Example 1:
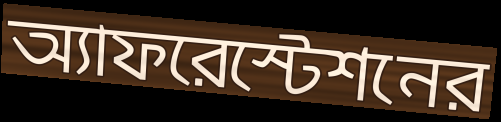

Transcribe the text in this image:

অ্যাফরেস্টেশনের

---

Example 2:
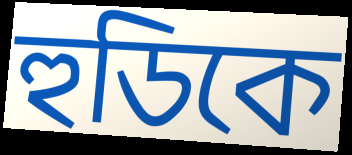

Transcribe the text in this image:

হুডিকে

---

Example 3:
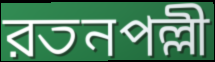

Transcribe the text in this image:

রতনপল্লী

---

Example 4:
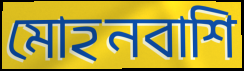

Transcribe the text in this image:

মোহনবাশি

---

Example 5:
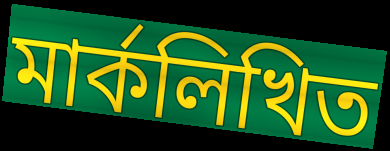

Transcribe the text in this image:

মার্কলিখিত